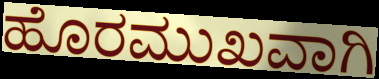
ಹೊರಮುಖವಾಗಿ